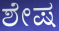
ಶೇಷ